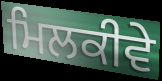
ਮਿਲਕੀਵੇ